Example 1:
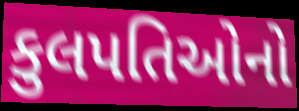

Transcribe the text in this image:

કુલપતિઓનો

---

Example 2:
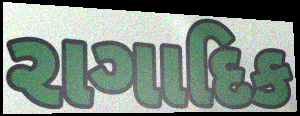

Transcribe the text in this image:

રાગાદિક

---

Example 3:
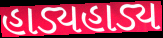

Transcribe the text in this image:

હાડ્યહાડ્ય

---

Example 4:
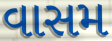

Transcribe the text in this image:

વાસમ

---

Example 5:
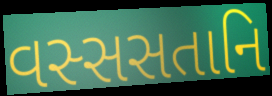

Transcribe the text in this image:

વસ્સસતાનિ